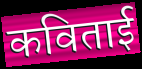
कविताई